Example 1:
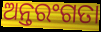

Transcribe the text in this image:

ଅନ୍ତରଂଗତା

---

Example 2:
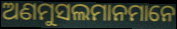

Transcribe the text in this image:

ଅଣମୁସଲମାନମାନେ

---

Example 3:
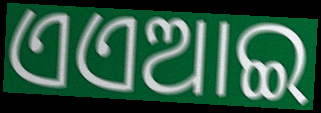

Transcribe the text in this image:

ଏଏଆଇ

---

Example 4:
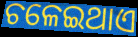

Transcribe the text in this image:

ଚଳେଇଥାଏ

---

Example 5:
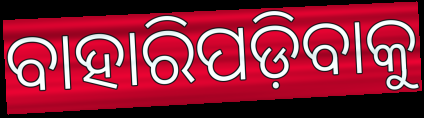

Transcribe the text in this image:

ବାହାରିପଡ଼ିବାକୁ